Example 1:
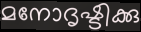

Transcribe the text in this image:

മനോദൃഷ്ടിക്കു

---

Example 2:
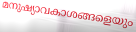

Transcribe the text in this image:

മനുഷ്യാവകാശങ്ങളെയും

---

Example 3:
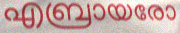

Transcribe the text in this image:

എബ്രായരോ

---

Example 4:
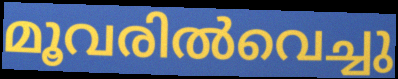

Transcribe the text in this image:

മൂവരിൽവെച്ചു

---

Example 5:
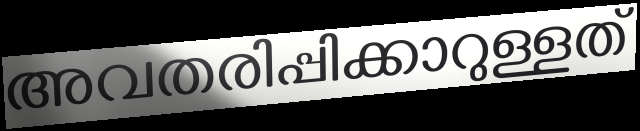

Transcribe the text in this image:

അവതരിപ്പിക്കാറുള്ളത്